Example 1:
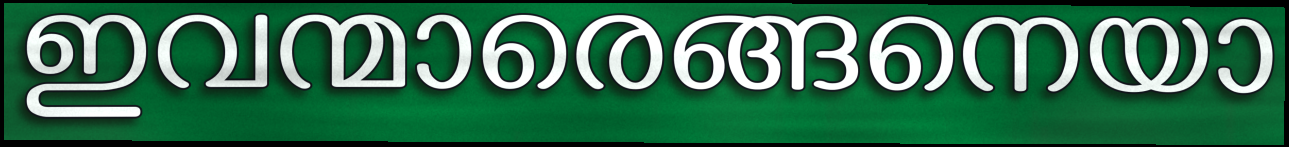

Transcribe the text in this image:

ഇവന്മാരെങ്ങനെയാ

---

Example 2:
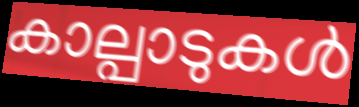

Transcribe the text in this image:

കാല്പാടുകൾ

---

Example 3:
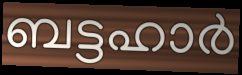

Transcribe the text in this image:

ബട്ടഹാർ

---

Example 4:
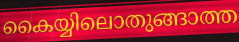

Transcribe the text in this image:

കൈയ്യിലൊതുങ്ങാത്ത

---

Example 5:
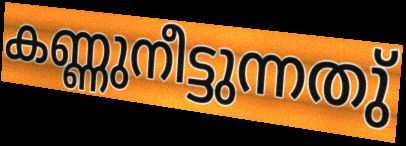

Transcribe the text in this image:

കണ്ണുനീട്ടുന്നതു്